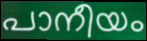
പാനീയം